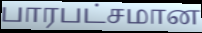
பாரபட்சமான